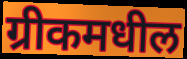
ग्रीकमधील